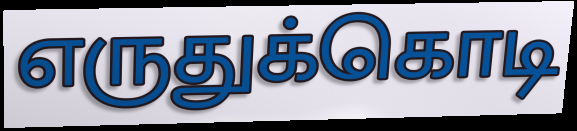
எருதுக்கொடி